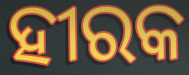
ହୀରକ